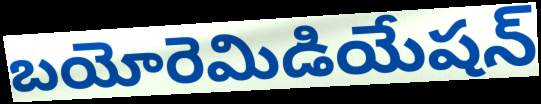
బయోరెమిడియేషన్